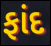
ફાંદ